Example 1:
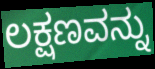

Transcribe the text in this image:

ಲಕ್ಷಣವನ್ನು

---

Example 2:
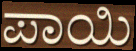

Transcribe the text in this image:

ಪಾಯಿ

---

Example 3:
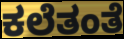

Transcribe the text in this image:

ಕಲೆತಂತೆ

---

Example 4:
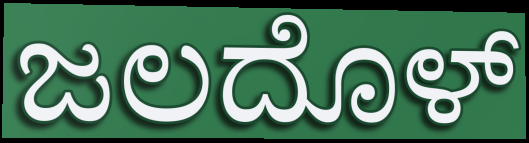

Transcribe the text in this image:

ಜಲದೊಳ್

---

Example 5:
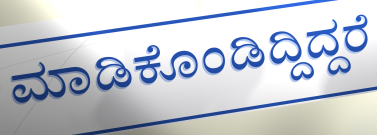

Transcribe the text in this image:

ಮಾಡಿಕೊಂಡಿದ್ದಿದ್ದರೆ